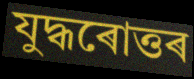
যুদ্ধৰোত্তৰ